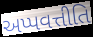
અપ્પવત્તીતિ